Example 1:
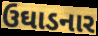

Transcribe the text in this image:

ઉઘાડનાર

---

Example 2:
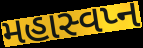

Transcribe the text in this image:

મહાસ્વપ્ન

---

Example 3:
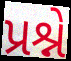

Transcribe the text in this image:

પ્રશ્ને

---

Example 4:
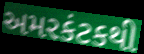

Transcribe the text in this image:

અમરકંટકથી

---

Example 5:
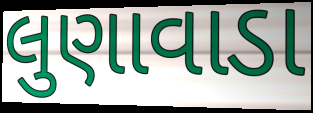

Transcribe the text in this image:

લુણાવાડા